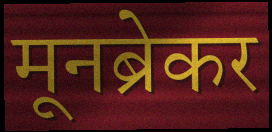
मूनब्रेकर